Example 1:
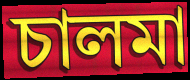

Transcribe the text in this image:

চালমা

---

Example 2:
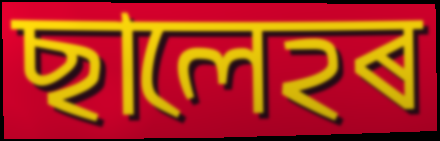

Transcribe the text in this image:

ছালেহৰ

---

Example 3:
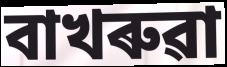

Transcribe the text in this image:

বাখৰুৱা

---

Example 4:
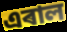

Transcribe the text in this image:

এৰাল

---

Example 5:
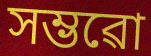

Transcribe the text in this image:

সম্ভৱো